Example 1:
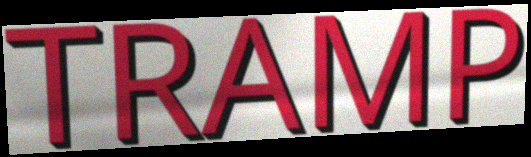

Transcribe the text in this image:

TRAMP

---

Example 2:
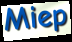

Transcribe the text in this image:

Miep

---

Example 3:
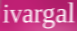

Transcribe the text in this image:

ivargal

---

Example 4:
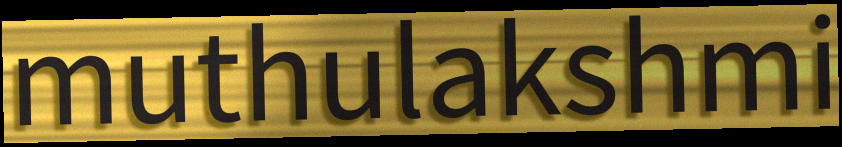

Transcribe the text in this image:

muthulakshmi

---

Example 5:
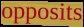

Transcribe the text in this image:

opposits